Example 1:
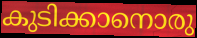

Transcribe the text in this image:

കുടിക്കാനൊരു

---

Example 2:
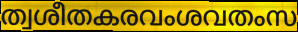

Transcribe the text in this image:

ത്വശീതകരവംശവതംസ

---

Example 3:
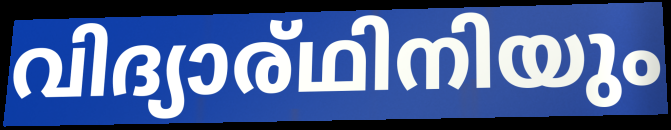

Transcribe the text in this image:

വിദ്യാര്ഥിനിയും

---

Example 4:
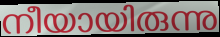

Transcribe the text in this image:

നീയായിരുന്നു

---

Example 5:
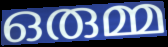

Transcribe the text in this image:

ഒരുമ്മ